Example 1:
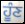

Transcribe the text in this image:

ਹੂੰਣ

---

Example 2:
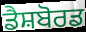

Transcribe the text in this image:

ਡੈਸ਼ਬੋਰਡ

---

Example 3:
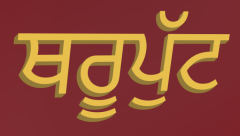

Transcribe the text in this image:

ਥਰੂਪੁੱਟ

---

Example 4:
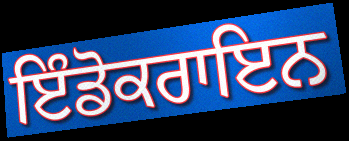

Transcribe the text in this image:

ਇੰਡੋਕਰਾਇਨ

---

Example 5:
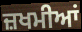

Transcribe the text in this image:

ਜ਼ਖਮੀਆਂ